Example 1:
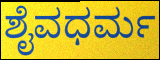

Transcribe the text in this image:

ಶೈವಧರ್ಮ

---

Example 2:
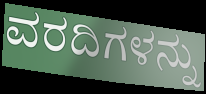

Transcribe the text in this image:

ವರದಿಗಳನ್ನು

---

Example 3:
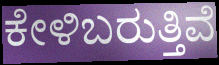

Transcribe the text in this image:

ಕೇಳಿಬರುತ್ತಿವೆ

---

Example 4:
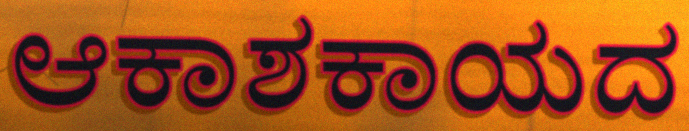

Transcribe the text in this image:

ಆಕಾಶಕಾಯದ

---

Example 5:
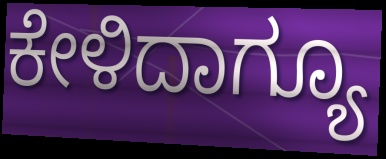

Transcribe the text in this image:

ಕೇಳಿದಾಗ್ಯೂ